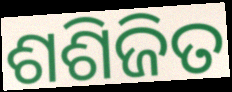
ଶଶିଜିତ